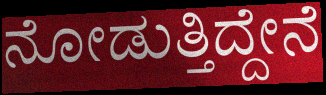
ನೋಡುತ್ತಿದ್ದೇನೆ